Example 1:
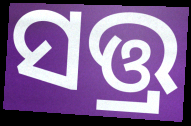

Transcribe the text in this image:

ସତ୍ତ୍ର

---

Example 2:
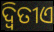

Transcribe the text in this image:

ଦ୍ୱିତୀଏ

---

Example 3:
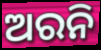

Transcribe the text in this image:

ଅରନି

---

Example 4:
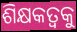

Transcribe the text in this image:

ଶିକ୍ଷକତ୍ଵକୁ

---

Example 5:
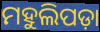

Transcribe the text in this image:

ମହୁଲିପଡ଼ା